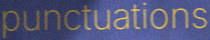
punctuations